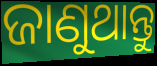
ଜାଣୁଥାନ୍ତୁ